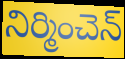
నిర్మించెన్